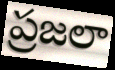
ప్రజలా